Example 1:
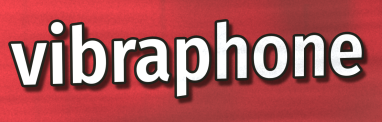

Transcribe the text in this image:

vibraphone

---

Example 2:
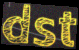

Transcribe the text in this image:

dst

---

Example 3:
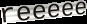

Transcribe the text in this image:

reeeee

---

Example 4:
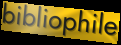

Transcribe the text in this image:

bibliophile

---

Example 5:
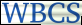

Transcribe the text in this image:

WBCS